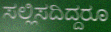
ಸಲ್ಲಿಸದಿದ್ದರೂ